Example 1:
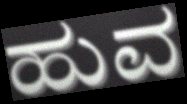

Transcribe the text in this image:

ಹುವ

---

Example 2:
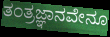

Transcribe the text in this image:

ತಂತ್ರಜ್ಞಾನವೇನೂ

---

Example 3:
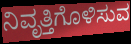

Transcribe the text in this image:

ನಿವೃತ್ತಿಗೊಳಿಸುವ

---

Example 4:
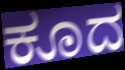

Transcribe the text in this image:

ಕೂದ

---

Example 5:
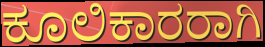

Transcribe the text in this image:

ಕೂಲಿಕಾರರಾಗಿ